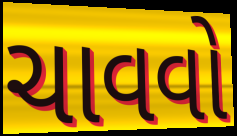
ચાવવો